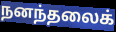
நனந்தலைக்